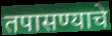
तपासण्याचे